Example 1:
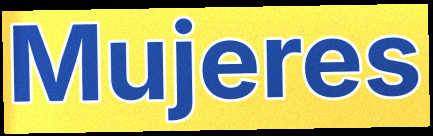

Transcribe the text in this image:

Mujeres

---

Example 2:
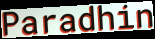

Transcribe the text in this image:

Paradhin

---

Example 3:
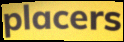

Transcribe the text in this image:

placers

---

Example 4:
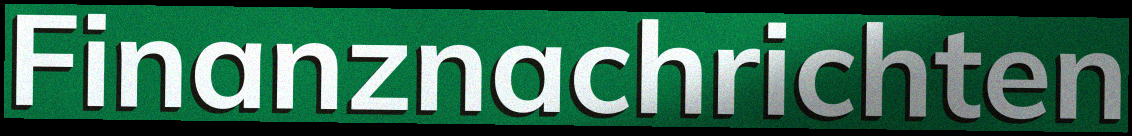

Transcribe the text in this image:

Finanznachrichten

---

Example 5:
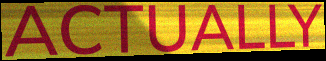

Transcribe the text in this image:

ACTUALLY